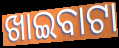
ଖାଇବାଟା